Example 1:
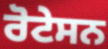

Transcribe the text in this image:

ਰੋਟੇਸਨ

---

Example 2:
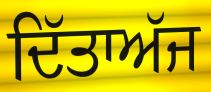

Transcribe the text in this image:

ਦਿੱਤਾਅੱਜ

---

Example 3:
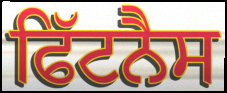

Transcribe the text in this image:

ਫਿੱਟਨੈਸ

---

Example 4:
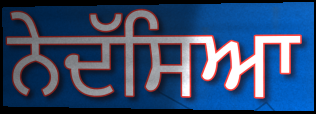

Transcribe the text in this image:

ਨੇਦੱਸਿਆ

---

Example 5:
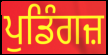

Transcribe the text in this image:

ਪੁਡਿੰਗਜ਼